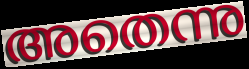
അതെന്നു